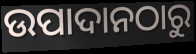
ଉପାଦାନଠାରୁ